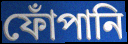
ফোঁপানি